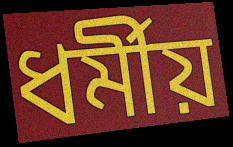
ধৰ্মীয়